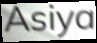
Asiya